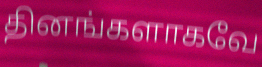
தினங்களாகவே